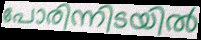
പോരിന്നിടയിൽ